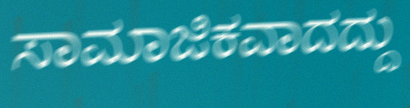
ಸಾಮಾಜಿಕವಾದದ್ದು